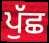
ਪੁੱਛ